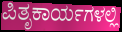
ಪಿತೃಕಾರ್ಯಗಳಲ್ಲಿ